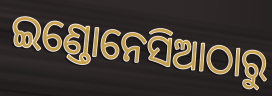
ଇଣ୍ଡୋନେସିଆଠାରୁ